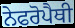
ਨੇਫਰੋਪੈਥੀ